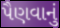
પૈણવાનું